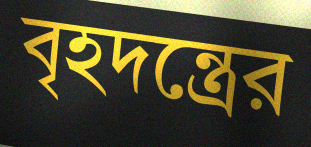
বৃহদন্ত্রের